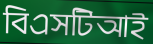
বিএসটিআই